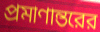
প্রমাণান্তরের